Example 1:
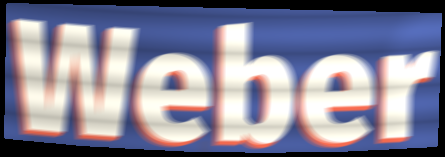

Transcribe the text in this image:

Weber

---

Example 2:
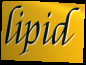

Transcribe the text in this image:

lipid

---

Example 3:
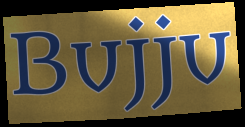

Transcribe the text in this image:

Bujju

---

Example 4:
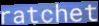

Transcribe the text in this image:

ratchet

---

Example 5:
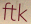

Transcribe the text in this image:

ftk